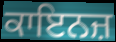
ਕਾਇਨਜ਼